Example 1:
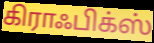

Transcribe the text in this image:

கிராஃபிக்ஸ்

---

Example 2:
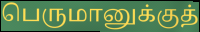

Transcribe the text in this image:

பெருமானுக்குத்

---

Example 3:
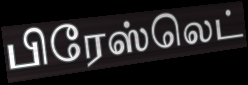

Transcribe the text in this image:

பிரேஸ்லெட்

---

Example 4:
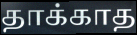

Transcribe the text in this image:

தாக்காத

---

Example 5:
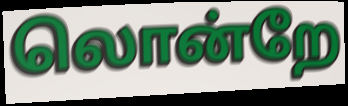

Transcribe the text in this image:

லொன்றே